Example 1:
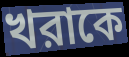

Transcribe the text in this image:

খরাকে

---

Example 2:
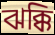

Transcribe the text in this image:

ঝক্কি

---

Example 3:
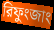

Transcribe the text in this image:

রিফুংজাং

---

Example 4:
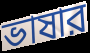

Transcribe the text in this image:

ভাষার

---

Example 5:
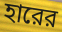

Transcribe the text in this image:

হারের